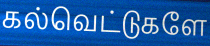
கல்வெட்டுகளே